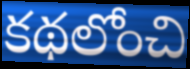
కథలోంచి